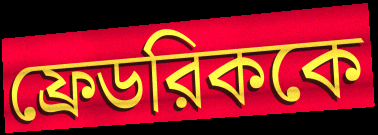
ফ্রেডরিককে